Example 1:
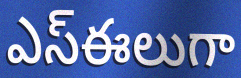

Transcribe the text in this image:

ఎస్ఈలుగా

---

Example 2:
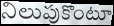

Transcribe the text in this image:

నిలుపుకొంటూ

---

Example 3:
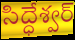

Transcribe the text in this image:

సిద్ధేశ్వర్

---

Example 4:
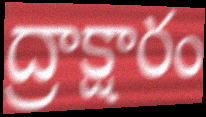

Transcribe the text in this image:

ద్రాక్షారం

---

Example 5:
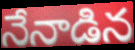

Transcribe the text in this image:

నేనాడిన